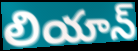
లియాన్